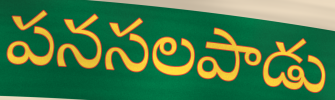
పనసలపాడు